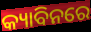
କ୍ୟାବିନରେ